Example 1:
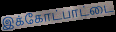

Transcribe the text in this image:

இக்கோட்பாட்டை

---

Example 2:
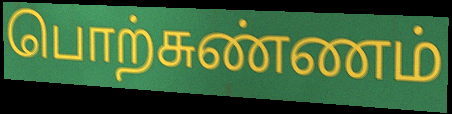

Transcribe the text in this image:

பொற்சுண்ணம்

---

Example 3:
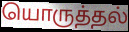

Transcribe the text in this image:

யொருத்தல்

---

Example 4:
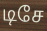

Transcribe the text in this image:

டிசே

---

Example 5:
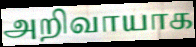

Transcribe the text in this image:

அறிவாயாக